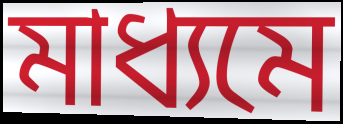
মাধ্যমে